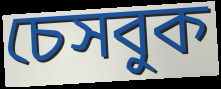
চেসবুক